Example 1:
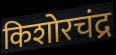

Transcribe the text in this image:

किशोरचंद्र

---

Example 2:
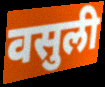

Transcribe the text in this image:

वसुली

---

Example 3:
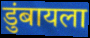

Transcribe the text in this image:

डुंबायला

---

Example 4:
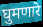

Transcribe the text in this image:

घुमणारे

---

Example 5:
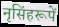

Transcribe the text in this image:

नृसिंहरूपें